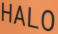
HALO